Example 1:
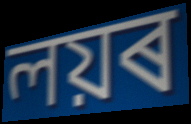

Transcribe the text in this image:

লয়ৰ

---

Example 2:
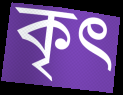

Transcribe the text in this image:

কৃৎ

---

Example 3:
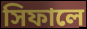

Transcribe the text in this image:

সিফালে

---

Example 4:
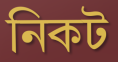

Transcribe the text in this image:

নিকট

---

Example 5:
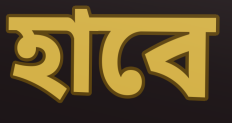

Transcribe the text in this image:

হাবে